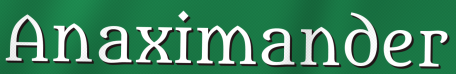
Anaximander